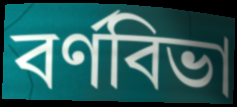
বর্ণবিভা